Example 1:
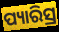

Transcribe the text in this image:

ପ୍ୟାରିସ୍ର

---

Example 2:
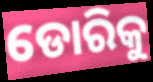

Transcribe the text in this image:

ଡୋରିକୁ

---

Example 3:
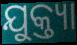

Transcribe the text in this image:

ଯୁକ୍ତ୍ୟା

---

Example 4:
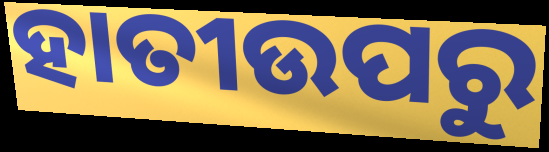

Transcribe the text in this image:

ହାତୀଉପରୁ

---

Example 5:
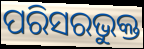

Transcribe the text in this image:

ପରିସରଭୁକ୍ତ